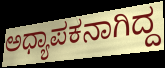
ಅಧ್ಯಾಪಕನಾಗಿದ್ದ